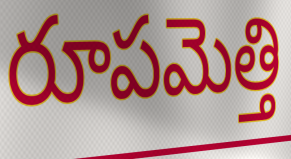
రూపమెత్తి